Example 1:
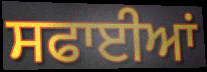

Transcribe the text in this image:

ਸਫਾਈਆਂ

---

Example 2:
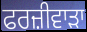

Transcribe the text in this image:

ਫਰਜ਼ੀਵਾੜਾ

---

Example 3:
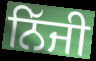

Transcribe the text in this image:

ਨਿੱਜੀ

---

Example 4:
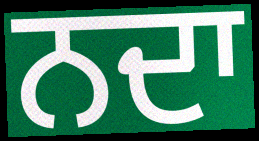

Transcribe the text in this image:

ਨਦਾ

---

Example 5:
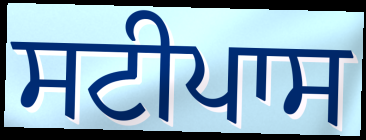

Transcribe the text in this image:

ਸਟੀਪਾਸ